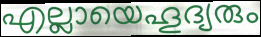
എല്ലായെഹൂദ്യരും